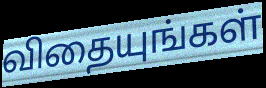
விதையுங்கள்